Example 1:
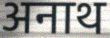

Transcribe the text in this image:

अनाथ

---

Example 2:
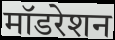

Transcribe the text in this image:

मॉडरेशन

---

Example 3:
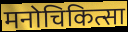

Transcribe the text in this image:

मनोचिकित्सा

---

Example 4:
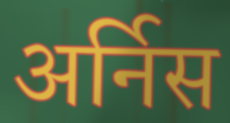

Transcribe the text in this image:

अर्निस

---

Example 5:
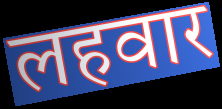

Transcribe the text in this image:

लहवार